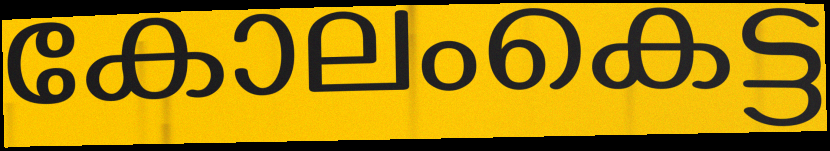
കോലംകെട്ട